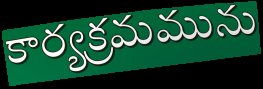
కార్యక్రమమును